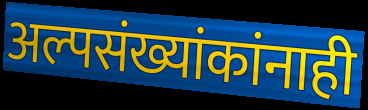
अल्पसंख्यांकांनाही